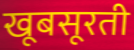
खूबसूरती